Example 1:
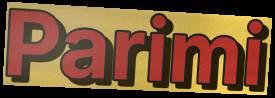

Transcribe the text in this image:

Parimi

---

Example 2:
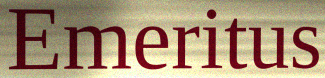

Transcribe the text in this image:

Emeritus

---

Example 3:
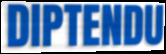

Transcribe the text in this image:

DIPTENDU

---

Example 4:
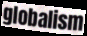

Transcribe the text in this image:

globalism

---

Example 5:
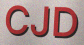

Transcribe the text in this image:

CJD